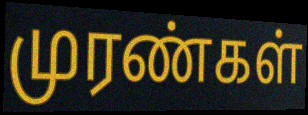
முரண்கள்